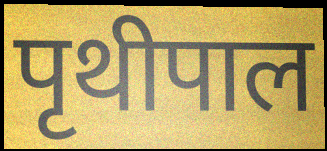
पृथीपाल